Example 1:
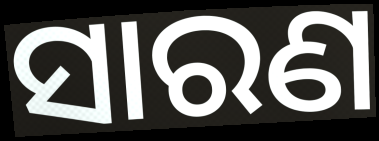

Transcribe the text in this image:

ସାରଣ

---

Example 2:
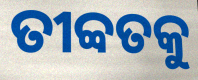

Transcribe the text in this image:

ତୀବ୍ବତକୁ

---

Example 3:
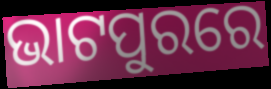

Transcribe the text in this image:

ଭାଟପୁରରେ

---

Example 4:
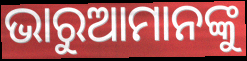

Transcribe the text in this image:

ଭାରୁଆମାନଙ୍କୁ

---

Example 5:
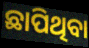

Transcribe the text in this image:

ଛାପିଥିବା